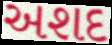
અશદ